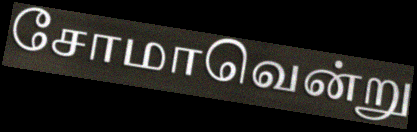
சோமாவென்று